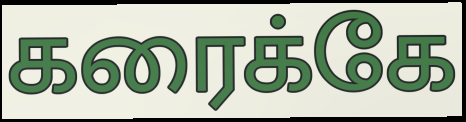
கரைக்கே